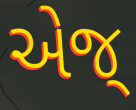
એજ્